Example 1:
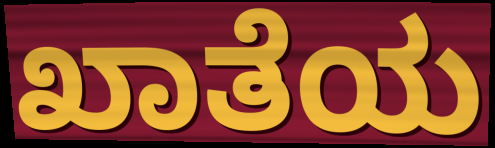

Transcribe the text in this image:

ಖಾತೆಯ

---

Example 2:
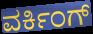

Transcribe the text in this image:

ವರ್ಕಿಂಗ್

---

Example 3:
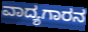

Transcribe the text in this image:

ವಾದ್ಯಗಾರನ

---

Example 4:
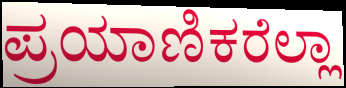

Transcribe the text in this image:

ಪ್ರಯಾಣಿಕರೆಲ್ಲಾ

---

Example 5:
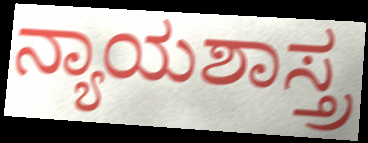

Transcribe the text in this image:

ನ್ಯಾಯಶಾಸ್ತ್ರ